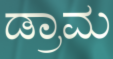
ಡ್ರಾಮ